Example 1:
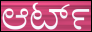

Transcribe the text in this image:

ಆರ್ಟ್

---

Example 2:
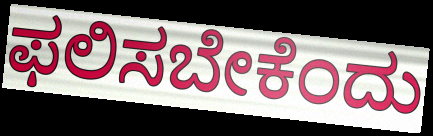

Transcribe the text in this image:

ಫಲಿಸಬೇಕೆಂದು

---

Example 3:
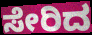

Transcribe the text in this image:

ಸೇರಿದ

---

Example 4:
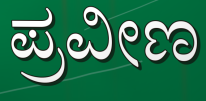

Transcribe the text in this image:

ಪ್ರವೀಣ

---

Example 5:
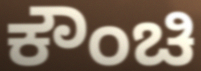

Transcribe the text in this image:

ಕೌಂಚಿ